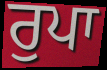
ਰੁਪਾ